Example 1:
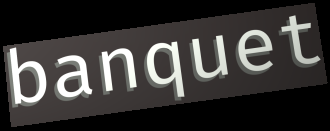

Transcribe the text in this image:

banquet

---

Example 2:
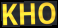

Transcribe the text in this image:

KHO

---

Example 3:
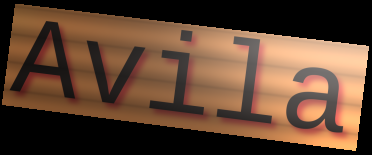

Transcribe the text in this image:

Avila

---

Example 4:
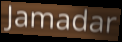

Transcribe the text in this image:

Jamadar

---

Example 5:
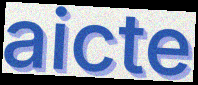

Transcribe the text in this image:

aicte